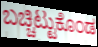
ಬಚ್ಚಿಟ್ಟುಕೊಂಡ